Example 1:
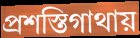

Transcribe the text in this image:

প্রশস্তিগাথায়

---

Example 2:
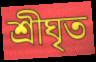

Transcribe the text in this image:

শ্রীঘৃত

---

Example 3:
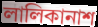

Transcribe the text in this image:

লালিকানাশ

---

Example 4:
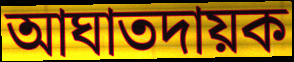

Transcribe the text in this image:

আঘাতদায়ক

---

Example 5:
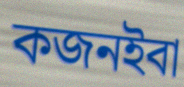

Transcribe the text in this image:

কজনইবা